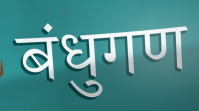
बंधुगण